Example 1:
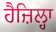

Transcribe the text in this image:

ਹੈਜ਼ਿਲ੍ਹਾ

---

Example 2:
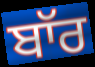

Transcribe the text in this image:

ਬਾੱਰ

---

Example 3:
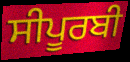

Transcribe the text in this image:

ਸੀਪੂਰਬੀ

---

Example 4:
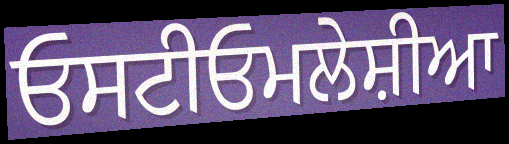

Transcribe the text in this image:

ਓਸਟੀਓਮਲੇਸ਼ੀਆ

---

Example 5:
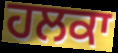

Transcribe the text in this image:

ਹਲਕਾ